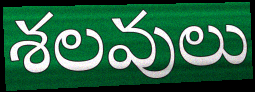
శలవులు